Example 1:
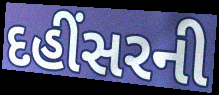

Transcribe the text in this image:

દહીંસરની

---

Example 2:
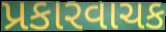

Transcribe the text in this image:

પ્રકારવાચક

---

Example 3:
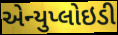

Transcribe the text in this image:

એન્યુપ્લોઇડી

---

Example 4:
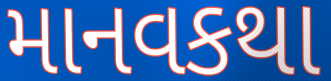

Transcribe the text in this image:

માનવકથા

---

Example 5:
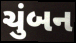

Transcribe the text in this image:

ચુંબન